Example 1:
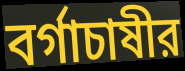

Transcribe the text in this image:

বর্গাচাষীর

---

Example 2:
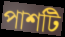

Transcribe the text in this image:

পাশটি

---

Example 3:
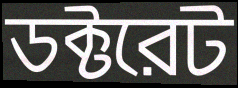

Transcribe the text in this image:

ডক্টরেট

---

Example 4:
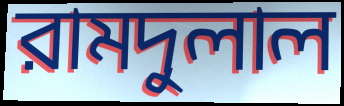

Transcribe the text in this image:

রামদুলাল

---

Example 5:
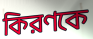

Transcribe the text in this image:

কিরণকে